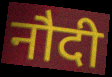
नौदी